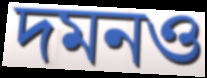
দমনও